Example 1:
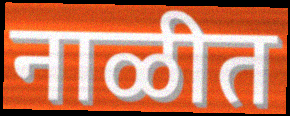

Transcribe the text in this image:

नाळीत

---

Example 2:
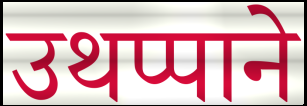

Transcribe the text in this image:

उथप्पाने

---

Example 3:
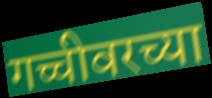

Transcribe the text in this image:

गच्चीवरच्या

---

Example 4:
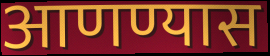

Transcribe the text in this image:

आणण्यास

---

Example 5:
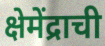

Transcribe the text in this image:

क्षेमेंद्राची